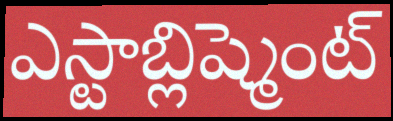
ఎస్టాబ్లిష్మెంట్